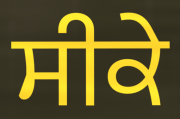
ਸੀਕੇ